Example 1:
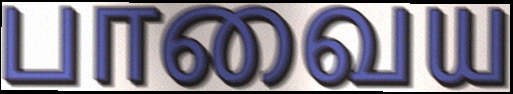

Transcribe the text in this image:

பாவைய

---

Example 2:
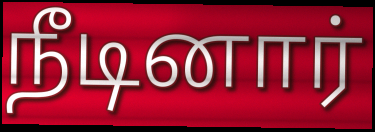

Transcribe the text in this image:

நீடினார்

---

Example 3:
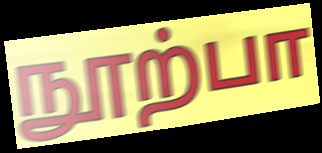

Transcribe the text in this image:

நூற்பா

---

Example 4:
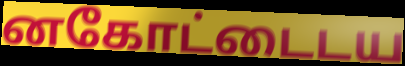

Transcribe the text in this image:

னகோட்டைடய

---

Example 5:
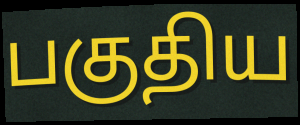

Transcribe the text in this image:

பகுதிய